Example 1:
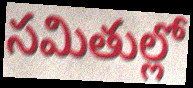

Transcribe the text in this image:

సమితుల్లో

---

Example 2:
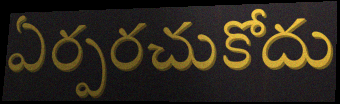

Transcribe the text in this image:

ఏర్పరచుకోదు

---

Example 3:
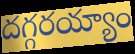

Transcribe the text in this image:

దగ్గరయ్యాం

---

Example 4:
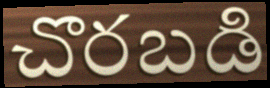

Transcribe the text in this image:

చొరబడి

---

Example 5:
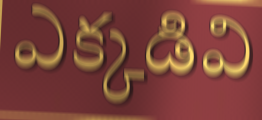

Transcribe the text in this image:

ఎక్కడివి